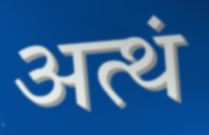
अत्थं